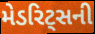
મેડરિટ્સની